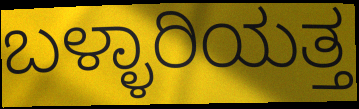
ಬಳ್ಳಾರಿಯತ್ತ